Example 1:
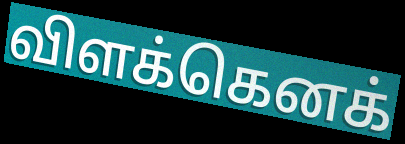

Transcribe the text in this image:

விளக்கெனக்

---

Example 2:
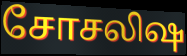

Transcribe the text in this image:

சோசலிஷ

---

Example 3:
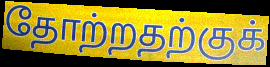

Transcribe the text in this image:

தோற்றதற்குக்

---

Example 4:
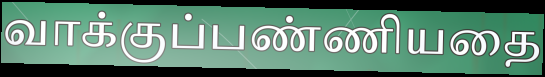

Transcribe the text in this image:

வாக்குப்பண்ணியதை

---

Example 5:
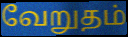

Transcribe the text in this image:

வேறுதம்